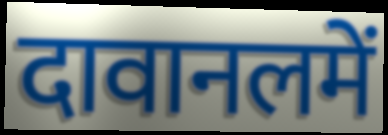
दावानलमें